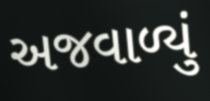
અજવાળ્યું